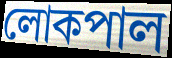
লোকপাল